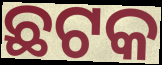
ଛଟକ